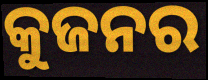
କୁଜନର